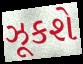
ઝૂકશે